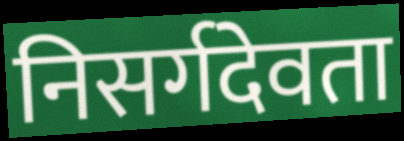
निसर्गदेवता